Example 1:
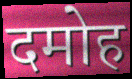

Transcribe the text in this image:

दमोह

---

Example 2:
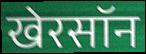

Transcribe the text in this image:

खेरसॉन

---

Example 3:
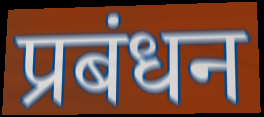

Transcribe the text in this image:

प्रबंधन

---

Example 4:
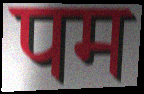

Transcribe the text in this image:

पम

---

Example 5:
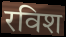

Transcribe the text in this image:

रविश